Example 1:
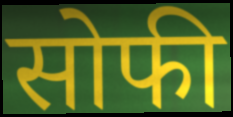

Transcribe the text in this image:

सोफी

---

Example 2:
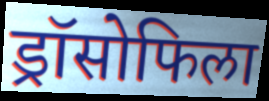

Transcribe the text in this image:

ड्रॉसोफिला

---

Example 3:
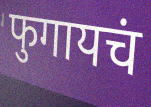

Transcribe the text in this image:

फुगायचं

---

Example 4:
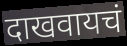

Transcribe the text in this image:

दाखवायचं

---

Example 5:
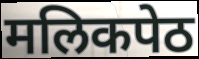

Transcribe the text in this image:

मलिकपेठ